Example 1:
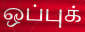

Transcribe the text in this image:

ஒப்புக்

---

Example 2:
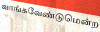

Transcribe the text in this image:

வாங்கவேண்டுமென்ற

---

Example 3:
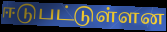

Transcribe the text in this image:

ஈடுபட்டுள்ளன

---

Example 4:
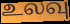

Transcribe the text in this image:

உலவு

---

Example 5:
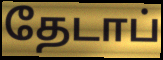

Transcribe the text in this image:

தேடாப்